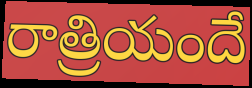
రాత్రియందే